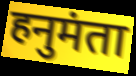
हनुमंता